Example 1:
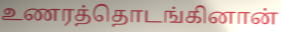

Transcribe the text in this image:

உணரத்தொடங்கினான்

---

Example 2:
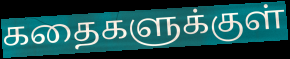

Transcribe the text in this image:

கதைகளுக்குள்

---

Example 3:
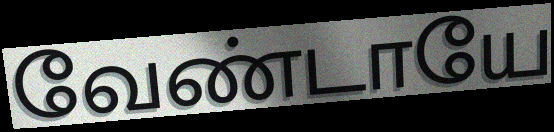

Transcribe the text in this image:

வேண்டாயே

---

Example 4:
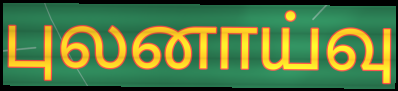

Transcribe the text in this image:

புலனாய்வு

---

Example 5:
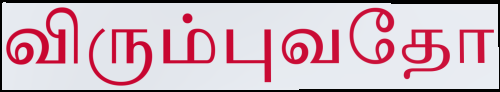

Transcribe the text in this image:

விரும்புவதோ